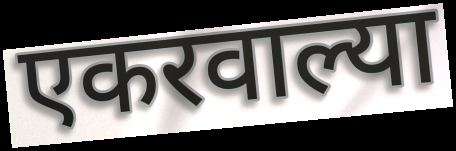
एकरवाल्या